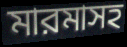
মারমাসহ